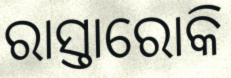
ରାସ୍ତାରୋକି